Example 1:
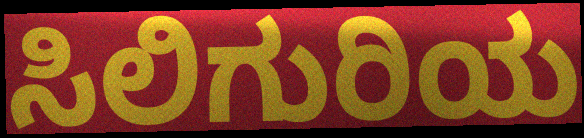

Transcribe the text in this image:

ಸಿಲಿಗುರಿಯ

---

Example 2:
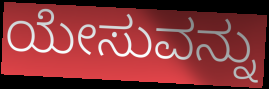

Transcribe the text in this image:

ಯೇಸುವನ್ನು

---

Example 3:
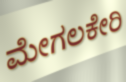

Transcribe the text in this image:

ಮೇಗಲಕೇರಿ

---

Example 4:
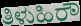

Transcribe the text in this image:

ತಿಳುಹಿರೌ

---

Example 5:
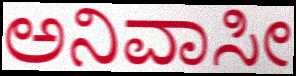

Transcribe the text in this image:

ಅನಿವಾಸೀ